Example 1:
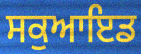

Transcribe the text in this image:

ਸਕੁਆਇਡ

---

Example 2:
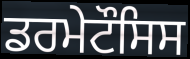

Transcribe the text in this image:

ਡਰਮੇਟੌਸਿਸ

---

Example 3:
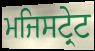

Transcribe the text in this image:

ਮਜਿਸਟ੍ਰੇਟ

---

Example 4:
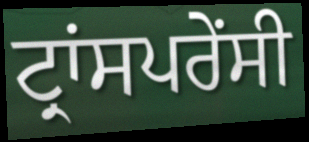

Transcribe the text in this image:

ਟ੍ਰਾਂਸਪਰੇਂਸੀ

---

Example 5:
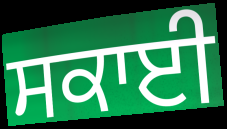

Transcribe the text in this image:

ਸਕਾਈ